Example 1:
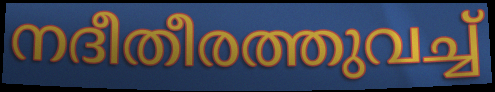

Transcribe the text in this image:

നദീതീരത്തുവച്ച്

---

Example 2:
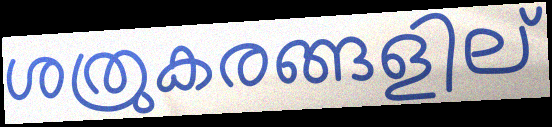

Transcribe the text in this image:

ശത്രുകരങ്ങളില്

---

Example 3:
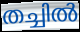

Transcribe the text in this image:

തച്ചിൽ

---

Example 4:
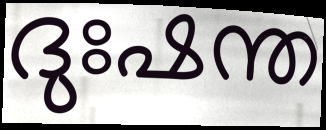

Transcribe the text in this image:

ദുഃഷന്ത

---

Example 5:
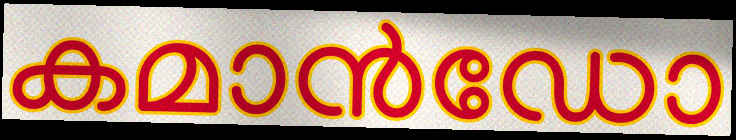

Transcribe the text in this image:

കമാൻഡോ